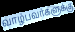
வாழ்பவர்களுக்கு